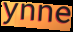
ynne